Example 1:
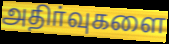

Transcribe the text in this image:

அதிர்வுகளை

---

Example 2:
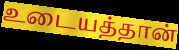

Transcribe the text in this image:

உடையத்தான்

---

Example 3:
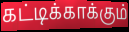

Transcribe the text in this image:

கட்டிக்காக்கும்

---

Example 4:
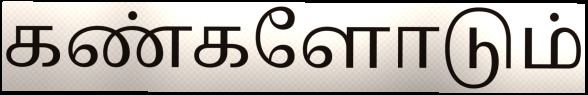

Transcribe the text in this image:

கண்களோடும்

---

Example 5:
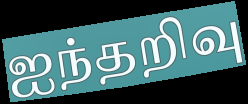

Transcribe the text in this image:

ஐந்தறிவு